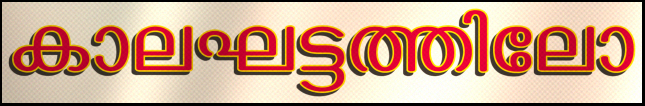
കാലഘട്ടത്തിലോ